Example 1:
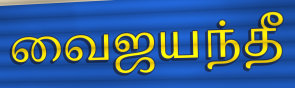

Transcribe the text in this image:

வைஜயந்தீ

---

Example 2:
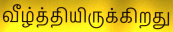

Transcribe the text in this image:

வீழ்த்தியிருக்கிறது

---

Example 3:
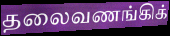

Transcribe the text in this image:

தலைவணங்கிக்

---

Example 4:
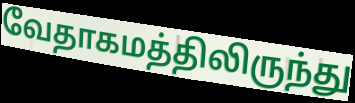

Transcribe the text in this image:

வேதாகமத்திலிருந்து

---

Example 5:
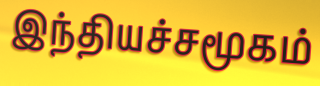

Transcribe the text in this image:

இந்தியச்சமூகம்